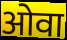
ओवा